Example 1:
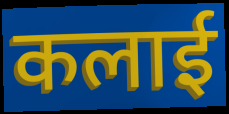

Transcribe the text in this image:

कलाई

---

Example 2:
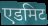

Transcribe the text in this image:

एडमिट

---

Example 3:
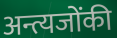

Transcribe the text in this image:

अन्त्यजोंकी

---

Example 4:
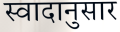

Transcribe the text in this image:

स्वादानुसार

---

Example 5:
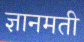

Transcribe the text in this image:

ज्ञानमती